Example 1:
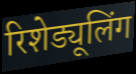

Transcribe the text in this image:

रिशेड्यूलिंग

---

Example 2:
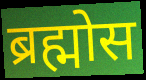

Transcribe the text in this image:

ब्रह्मोस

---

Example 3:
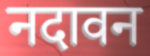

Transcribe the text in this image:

नदावन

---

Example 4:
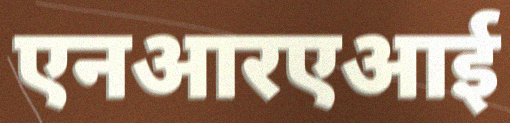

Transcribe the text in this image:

एनआरएआई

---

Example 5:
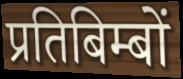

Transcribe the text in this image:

प्रतिबिम्बों